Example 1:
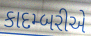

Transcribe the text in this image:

કાદમ્બરીએ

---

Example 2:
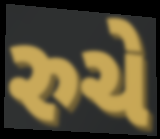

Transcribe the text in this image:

રુચે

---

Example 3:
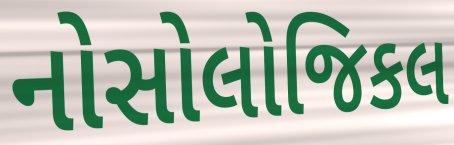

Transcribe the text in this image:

નોસોલોજિકલ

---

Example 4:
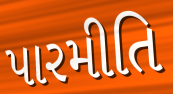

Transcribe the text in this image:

પારમીતિ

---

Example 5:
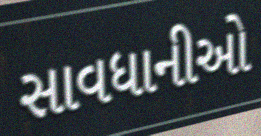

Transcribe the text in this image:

સાવધાનીઓ